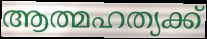
ആത്മഹത്യക്ക്